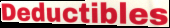
Deductibles